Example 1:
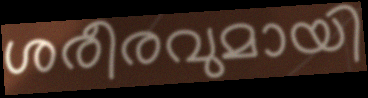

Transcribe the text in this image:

ശരീരവുമായി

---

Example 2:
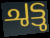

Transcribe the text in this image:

ചുട്ടു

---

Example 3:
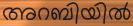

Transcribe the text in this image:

അറബിയിൽ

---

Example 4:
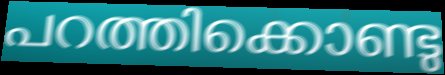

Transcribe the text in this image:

പറത്തിക്കൊണ്ടു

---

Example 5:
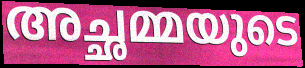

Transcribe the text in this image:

അച്ഛമ്മയുടെ